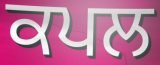
ਕਪਲ